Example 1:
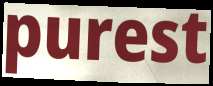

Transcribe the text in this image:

purest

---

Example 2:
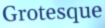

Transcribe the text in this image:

Grotesque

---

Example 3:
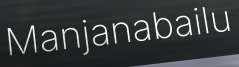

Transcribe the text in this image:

Manjanabailu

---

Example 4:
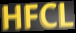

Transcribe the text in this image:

HFCL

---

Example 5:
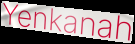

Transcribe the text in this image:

Yenkanah